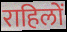
राहिलों